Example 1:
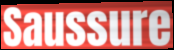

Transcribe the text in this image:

Saussure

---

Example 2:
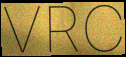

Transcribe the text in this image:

VRC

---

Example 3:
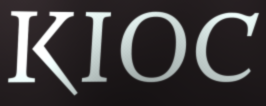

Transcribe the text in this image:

KIOC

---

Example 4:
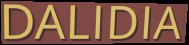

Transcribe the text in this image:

DALIDIA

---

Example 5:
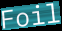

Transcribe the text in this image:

Foil